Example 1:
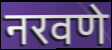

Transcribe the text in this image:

नरवणे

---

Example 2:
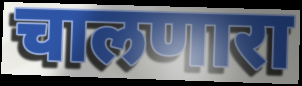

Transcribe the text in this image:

चालणारा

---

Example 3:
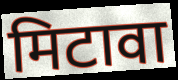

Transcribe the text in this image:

मिटावा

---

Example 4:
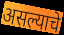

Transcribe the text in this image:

असल्याचे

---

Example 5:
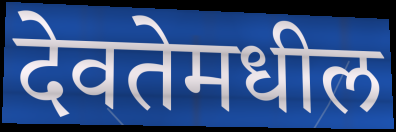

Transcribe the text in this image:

देवतेमधील